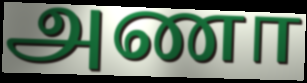
அணா